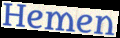
Hemen